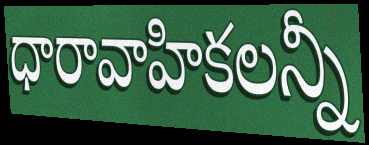
ధారావాహికలన్నీ